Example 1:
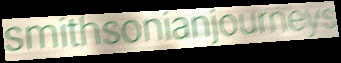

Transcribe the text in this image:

smithsonianjourneys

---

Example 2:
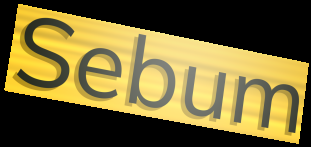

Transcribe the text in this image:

Sebum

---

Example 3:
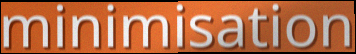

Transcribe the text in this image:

minimisation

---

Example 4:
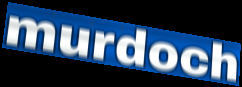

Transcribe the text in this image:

murdoch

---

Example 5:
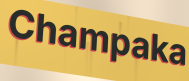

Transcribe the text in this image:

Champaka